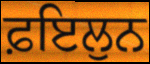
ਫ਼ਇਲੁਨ